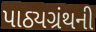
પાઠ્યગ્રંથની